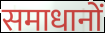
समाधानों